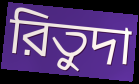
রিতুদা